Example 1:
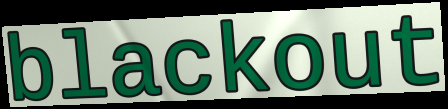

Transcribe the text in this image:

blackout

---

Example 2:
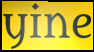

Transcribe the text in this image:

yine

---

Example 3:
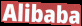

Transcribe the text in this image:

Alibaba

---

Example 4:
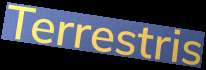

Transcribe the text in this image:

Terrestris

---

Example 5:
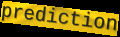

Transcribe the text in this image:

prediction